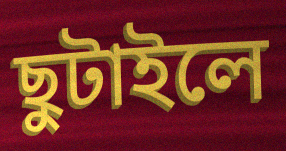
ছুটাইলে